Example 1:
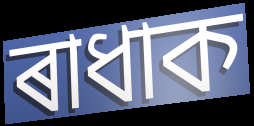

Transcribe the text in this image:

ৰাধাক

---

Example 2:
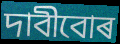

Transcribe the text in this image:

দাবীবোৰ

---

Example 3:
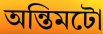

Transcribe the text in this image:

অন্তিমটো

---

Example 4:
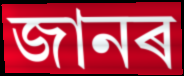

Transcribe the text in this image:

জানৰ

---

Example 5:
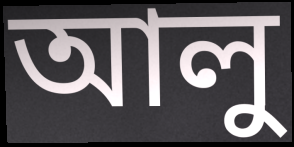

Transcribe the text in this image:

আলু